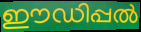
ഈഡിപ്പൽ